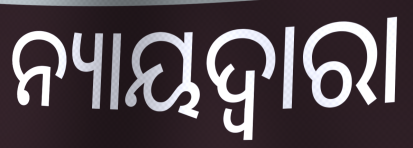
ନ୍ୟାୟଦ୍ୱାରା